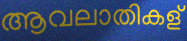
ആവലാതികള്